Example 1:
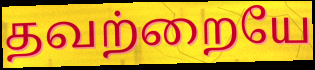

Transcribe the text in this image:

தவற்றையே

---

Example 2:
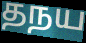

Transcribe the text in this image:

தநய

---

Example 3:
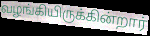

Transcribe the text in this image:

வழங்கியிருக்கின்றார்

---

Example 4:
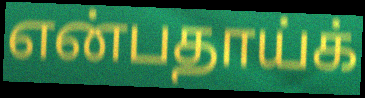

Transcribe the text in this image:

என்பதாய்க்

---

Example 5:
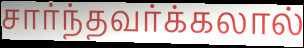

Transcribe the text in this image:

சார்ந்தவர்க்கலால்